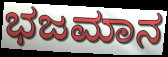
ಭಜಮಾನ